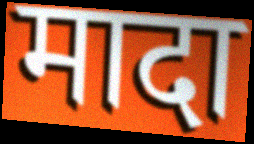
मादा